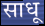
साधू